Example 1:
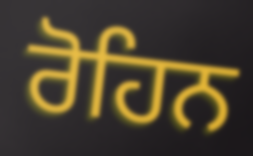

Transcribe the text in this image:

ਰੋਹਿਨ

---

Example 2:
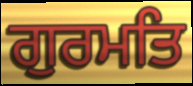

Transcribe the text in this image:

ਗੁਰਮਤਿ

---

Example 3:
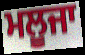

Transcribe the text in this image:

ਮਲੂਜਾ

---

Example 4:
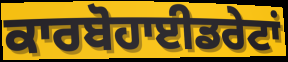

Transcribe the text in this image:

ਕਾਰਬੋਹਾਈਡਰੇਟਾਂ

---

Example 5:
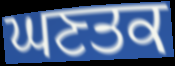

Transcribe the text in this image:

ਘਣਤਕ